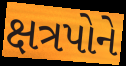
ક્ષત્રપોને